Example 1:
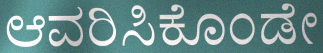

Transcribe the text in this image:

ಆವರಿಸಿಕೊಂಡೇ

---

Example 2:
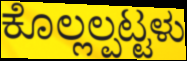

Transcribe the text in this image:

ಕೊಲ್ಲಲ್ಪಟ್ಟಳು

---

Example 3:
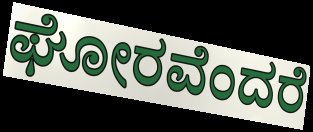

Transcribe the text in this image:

ಘೋರವೆಂದರೆ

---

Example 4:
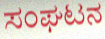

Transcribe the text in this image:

ಸಂಘಟನ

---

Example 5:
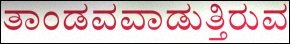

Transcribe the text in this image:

ತಾಂಡವವಾಡುತ್ತಿರುವ